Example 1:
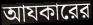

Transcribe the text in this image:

আযকারের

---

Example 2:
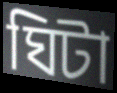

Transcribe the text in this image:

ঘিটা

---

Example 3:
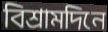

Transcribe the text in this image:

বিশ্রামদিনে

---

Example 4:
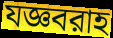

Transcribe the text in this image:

যজ্ঞবরাহ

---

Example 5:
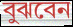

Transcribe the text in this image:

বুঝবেন